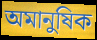
অমানুষিক